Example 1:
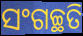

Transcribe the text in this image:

ସଂଗଚ୍ଛତି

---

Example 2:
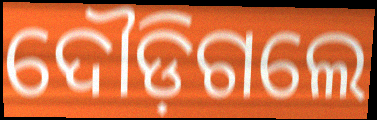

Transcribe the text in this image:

ଦୌଡ଼ିଗଲେ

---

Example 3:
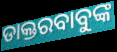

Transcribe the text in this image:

ଡାକ୍ତରବାବୁଙ୍କ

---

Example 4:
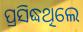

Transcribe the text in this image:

ପ୍ରସିଦ୍ଧଥିଲେ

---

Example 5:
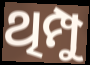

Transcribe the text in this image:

ଥିମ୍ପୁ